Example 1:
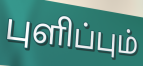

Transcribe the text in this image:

புளிப்பும்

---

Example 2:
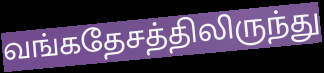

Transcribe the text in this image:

வங்கதேசத்திலிருந்து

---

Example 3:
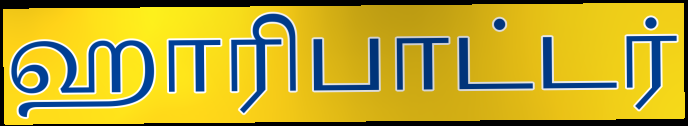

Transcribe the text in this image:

ஹாரிபாட்டர்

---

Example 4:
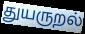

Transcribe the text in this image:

துயருறல்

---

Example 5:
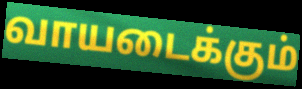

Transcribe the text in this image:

வாயடைக்கும்